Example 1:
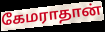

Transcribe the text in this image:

கேமராதான்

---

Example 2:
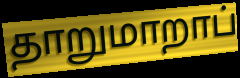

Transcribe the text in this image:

தாறுமாறாப்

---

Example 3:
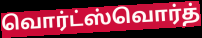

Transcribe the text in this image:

வொர்ட்ஸ்வொர்த்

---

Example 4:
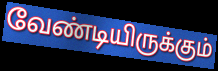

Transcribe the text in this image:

வேண்டியிருக்கும்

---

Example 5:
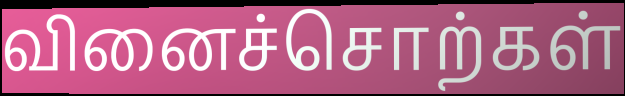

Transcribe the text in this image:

வினைச்சொற்கள்